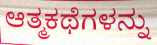
ಆತ್ಮಕಥೆಗಳನ್ನು